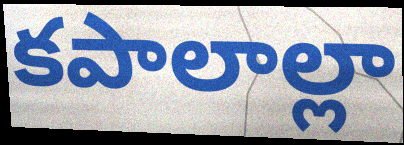
కపాలాల్లా